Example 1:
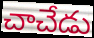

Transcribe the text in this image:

చాచేడు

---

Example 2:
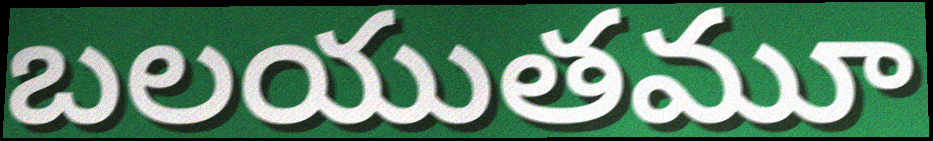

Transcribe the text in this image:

బలయుతమూ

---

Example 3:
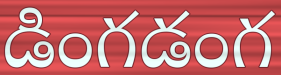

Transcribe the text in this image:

డింగడంగ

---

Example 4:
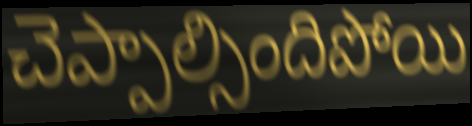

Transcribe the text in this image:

చెప్పాల్సిందిపోయి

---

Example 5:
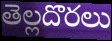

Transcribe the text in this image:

తెల్లదొరలు